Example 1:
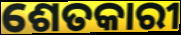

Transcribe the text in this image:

ଶେତକାରୀ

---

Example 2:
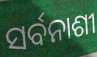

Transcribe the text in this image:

ସର୍ବନାଶୀ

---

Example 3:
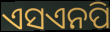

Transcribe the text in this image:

ଏସଏନପି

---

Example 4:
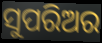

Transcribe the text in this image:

ସୁପରିଅର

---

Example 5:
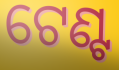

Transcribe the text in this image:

ଟେଣ୍ଟ